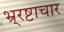
भ्र्रष्टाचार